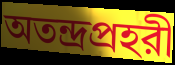
অতন্দ্রপ্রহরী